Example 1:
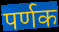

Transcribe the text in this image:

पर्णक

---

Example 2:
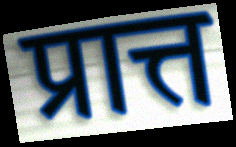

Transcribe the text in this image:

प्रात्त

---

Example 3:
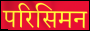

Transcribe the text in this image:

परिसिमन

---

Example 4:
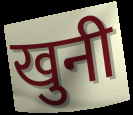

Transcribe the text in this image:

खुनी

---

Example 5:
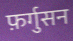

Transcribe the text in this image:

फ़र्गुसन